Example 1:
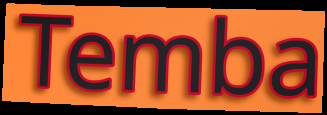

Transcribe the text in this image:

Temba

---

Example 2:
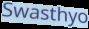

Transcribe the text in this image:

Swasthyo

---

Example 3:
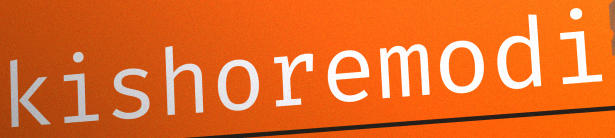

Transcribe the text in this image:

kishoremodi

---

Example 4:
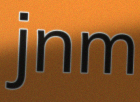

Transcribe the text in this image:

jnm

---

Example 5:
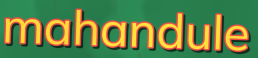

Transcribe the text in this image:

mahandule